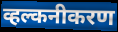
व्हल्कनीकरण